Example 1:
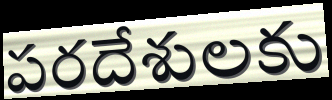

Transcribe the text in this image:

పరదేశులకు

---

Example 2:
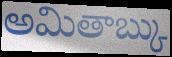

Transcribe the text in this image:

అమితాబ్కు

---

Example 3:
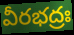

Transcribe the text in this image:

వీరభద్రః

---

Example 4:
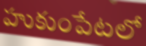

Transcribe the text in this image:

హుకుంపేటలో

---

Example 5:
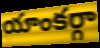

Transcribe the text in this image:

యాంకర్గా